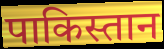
पाकिस्‍तान